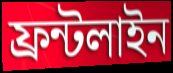
ফ্রন্টলাইন